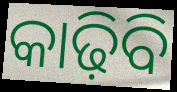
କାଢ଼ିବି